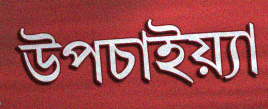
উপচাইয়্যা